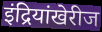
इंद्रियांखेरीज